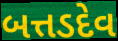
બત્તડદેવ